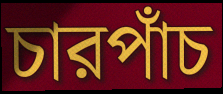
চারপাঁচ